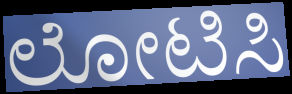
ಲೋಟಿಸಿ